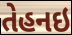
તેહનઇ